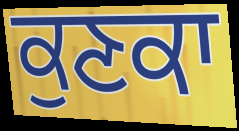
ਕੁਣਕਾ